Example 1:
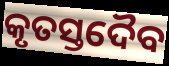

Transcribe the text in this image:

କୃତସ୍ତଦୈବ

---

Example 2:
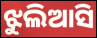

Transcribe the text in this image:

ଝୁଲିଆସି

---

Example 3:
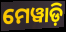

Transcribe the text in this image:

ମେୱାଡ଼ି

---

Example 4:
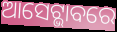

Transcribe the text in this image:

ଆସେଟ୍ଭାବରେ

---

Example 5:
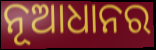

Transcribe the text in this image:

ନୂଆଧାନର